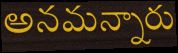
అనమన్నారు